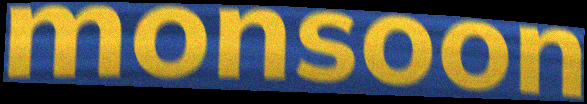
monsoon